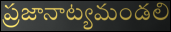
ప్రజానాట్యమండలి